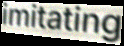
imitating